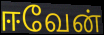
ஈவேன்